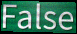
False